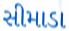
સીમાડા